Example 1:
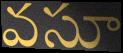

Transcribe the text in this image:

వసూ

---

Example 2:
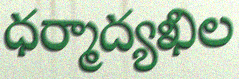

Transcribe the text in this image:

ధర్మాద్యఖిల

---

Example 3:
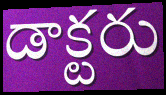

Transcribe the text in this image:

డాక్టరు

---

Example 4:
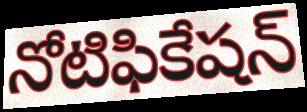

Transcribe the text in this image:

నోటిఫికేషన్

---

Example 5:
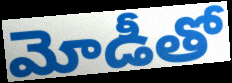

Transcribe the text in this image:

మోడీతో